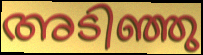
അടിഞ്ഞു